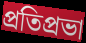
প্রতিপ্রভা